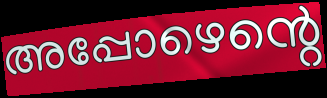
അപ്പോഴെന്റെ